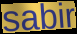
sabir